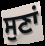
ਸੁਣਾਂ